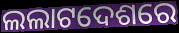
ଲଲାଟଦେଶରେ